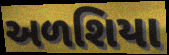
અળશિયા